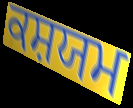
ਕਸ਼ਯਮ